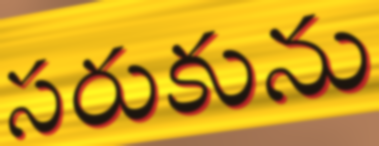
సరుకును